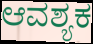
ಆವಶ್ಯಕ